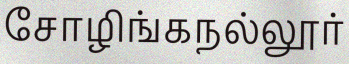
சோழிங்கநல்லூர்